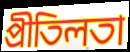
প্রীতিলতা